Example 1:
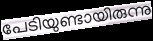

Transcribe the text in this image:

പേടിയുണ്ടായിരുന്നു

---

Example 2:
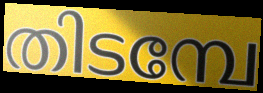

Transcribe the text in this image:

തിടമ്പേ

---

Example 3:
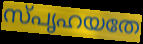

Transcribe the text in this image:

സ്പൃഹയതേ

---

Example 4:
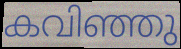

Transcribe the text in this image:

കവിഞ്ഞു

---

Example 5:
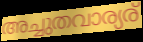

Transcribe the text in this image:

അച്ചുതവാര്യര്